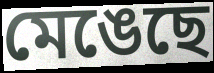
মেঙেছে